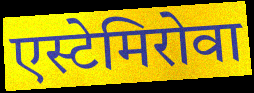
एस्टेमिरोवा